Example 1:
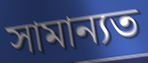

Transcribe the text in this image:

সামান্যত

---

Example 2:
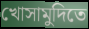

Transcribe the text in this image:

খোসামুদিতে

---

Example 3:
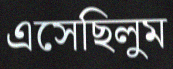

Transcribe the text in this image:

এসেছিলুম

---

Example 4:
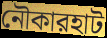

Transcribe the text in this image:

নৌকারহাট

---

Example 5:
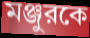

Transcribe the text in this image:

মঞ্জুরকে